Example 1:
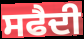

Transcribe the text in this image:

ਸਫੈਦੀ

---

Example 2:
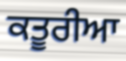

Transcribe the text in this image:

ਕਤੂਰੀਆ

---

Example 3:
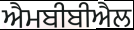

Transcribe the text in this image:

ਐਮਬੀਬੀਐਲ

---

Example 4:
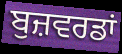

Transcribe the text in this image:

ਬੁਜ਼ਵਰਡਾਂ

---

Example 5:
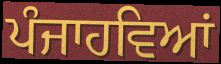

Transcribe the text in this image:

ਪੰਜਾਹਵਿਆਂ